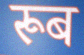
रूब